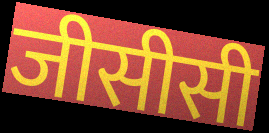
जीसीसी